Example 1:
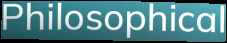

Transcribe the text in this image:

Philosophical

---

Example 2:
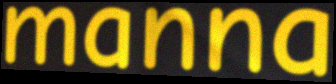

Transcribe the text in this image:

manna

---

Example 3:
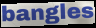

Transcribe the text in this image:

bangles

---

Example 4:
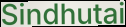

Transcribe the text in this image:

Sindhutai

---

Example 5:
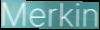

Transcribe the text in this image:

Merkin